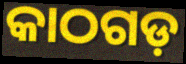
କାଠଗଡ଼